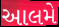
આલમે